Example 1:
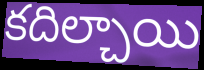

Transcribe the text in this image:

కదిల్చాయి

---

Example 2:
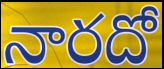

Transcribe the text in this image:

నారదో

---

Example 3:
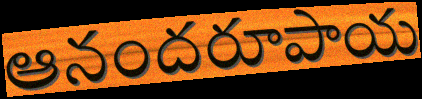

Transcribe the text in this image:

ఆనందరూపాయ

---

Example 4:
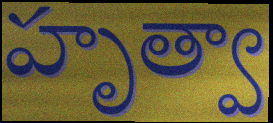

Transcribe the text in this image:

హృత్వా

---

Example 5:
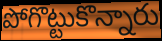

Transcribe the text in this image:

పోగొట్టుకొన్నారు